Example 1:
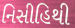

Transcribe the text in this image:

નિસીહિથી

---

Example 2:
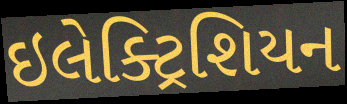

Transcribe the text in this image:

ઇલેક્ટ્રિશિયન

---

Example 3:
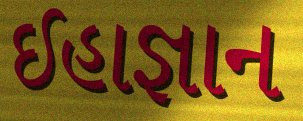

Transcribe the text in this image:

ઈહાજ્ઞાન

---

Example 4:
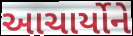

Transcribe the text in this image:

આચાર્યોને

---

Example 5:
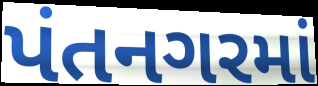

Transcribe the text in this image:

પંતનગરમાં